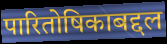
पारितोषिकाबद्दल